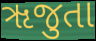
ૠજુતા